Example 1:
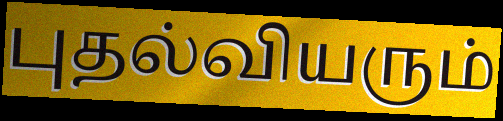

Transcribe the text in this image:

புதல்வியரும்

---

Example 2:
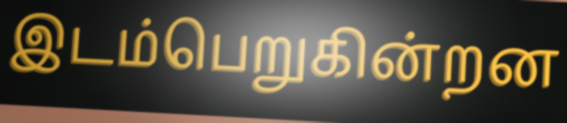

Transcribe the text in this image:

இடம்பெறுகின்றன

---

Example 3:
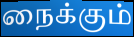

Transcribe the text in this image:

நைக்கும்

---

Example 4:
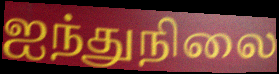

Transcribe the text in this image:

ஐந்துநிலை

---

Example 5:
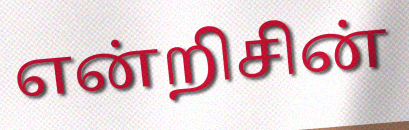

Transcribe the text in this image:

என்றிசின்